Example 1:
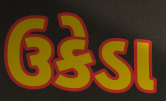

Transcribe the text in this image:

ઉકેડા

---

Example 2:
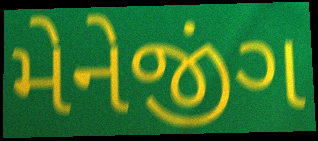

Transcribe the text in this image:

મેનેજીંગ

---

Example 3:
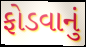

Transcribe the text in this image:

ફોડવાનું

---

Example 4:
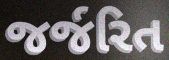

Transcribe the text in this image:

જર્જરિત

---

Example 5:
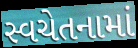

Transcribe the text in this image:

સ્વચેતનામાં